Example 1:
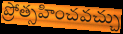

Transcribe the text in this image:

ప్రోత్సహించవచ్చు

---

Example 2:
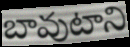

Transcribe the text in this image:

బావుటాని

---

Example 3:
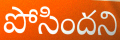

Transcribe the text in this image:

పోసిందని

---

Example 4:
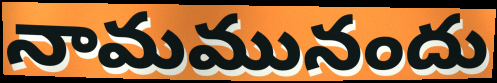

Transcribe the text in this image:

నామమునందు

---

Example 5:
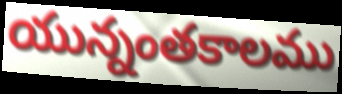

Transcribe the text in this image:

యున్నంతకాలము